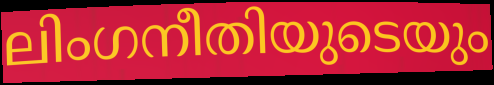
ലിംഗനീതിയുടെയും